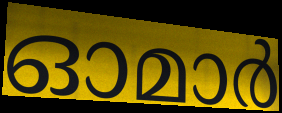
ഓമാർ